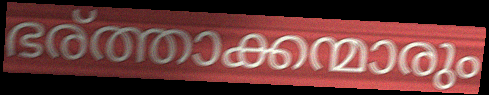
ഭര്ത്താക്കന്മാരും